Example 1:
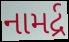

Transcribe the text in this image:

નામર્દ્ર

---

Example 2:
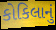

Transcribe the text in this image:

કોકિલાનું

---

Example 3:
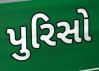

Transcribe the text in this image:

પુરિસો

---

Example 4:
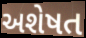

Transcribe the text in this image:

અશેષત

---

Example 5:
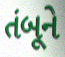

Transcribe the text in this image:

તંબૂને